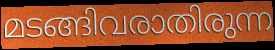
മടങ്ങിവരാതിരുന്ന